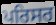
ਪਰਿਸਰ